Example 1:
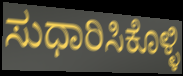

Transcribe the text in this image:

ಸುಧಾರಿಸಿಕೊಳ್ಳಿ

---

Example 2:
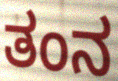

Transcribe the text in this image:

ತಂನ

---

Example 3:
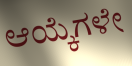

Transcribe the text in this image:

ಆಯ್ಕೆಗಳೇ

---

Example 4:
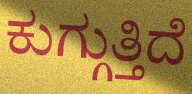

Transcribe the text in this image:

ಕುಗ್ಗುತ್ತಿದೆ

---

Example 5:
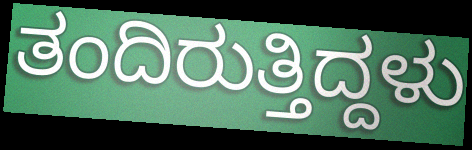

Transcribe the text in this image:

ತಂದಿರುತ್ತಿದ್ದಳು